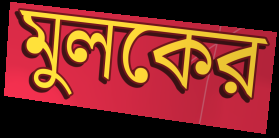
মুলকের